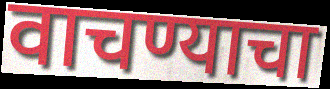
वाचण्याचा